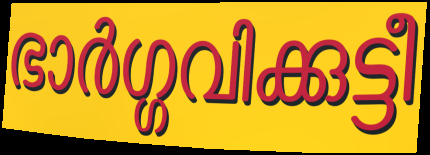
ഭാർഗ്ഗവിക്കുട്ടീ